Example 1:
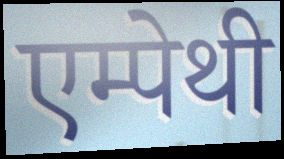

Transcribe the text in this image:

एम्पेथी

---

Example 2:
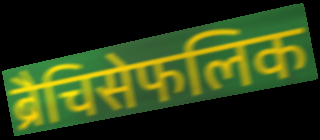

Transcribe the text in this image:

ब्रैचिसेफलिक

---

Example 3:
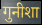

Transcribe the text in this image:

गुनीशा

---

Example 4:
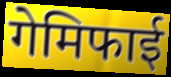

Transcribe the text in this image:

गेमिफाई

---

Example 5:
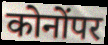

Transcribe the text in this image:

कोनोंपर